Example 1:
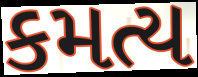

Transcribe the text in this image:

કમત્ય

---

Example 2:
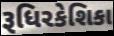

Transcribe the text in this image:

રૂધિરકેશિકા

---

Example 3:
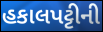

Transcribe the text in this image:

હકાલપટ્ટીની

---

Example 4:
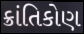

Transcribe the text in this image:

ક્રાંતિકોણ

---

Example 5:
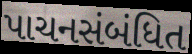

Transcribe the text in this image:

પાચનસંબંધિત